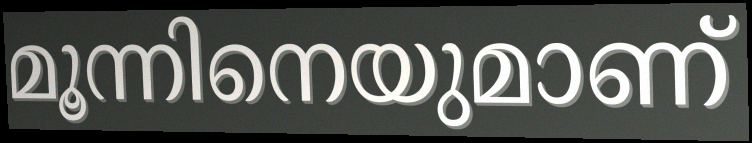
മൂന്നിനെയുമാണ്